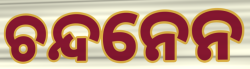
ଚନ୍ଦନେନ